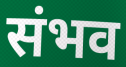
संभव